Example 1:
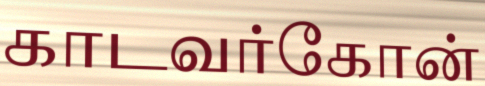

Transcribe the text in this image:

காடவர்கோன்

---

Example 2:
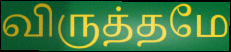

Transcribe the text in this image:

விருத்தமே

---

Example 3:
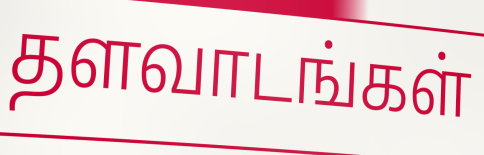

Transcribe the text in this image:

தளவாடங்கள்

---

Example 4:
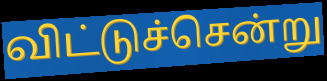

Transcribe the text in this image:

விட்டுச்சென்று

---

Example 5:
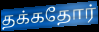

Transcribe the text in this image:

தக்கதோர்